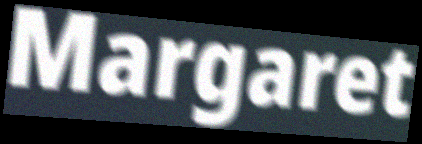
Margaret